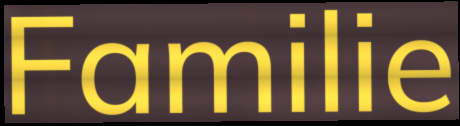
Familie